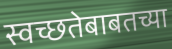
स्वच्छतेबाबतच्या